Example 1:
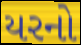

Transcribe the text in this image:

યરનો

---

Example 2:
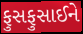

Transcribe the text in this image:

ફુસફુસાઈને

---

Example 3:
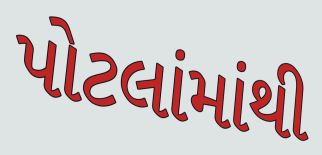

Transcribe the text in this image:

પોટલાંમાંથી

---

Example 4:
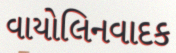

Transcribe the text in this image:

વાયોલિનવાદક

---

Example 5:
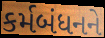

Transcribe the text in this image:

કર્મબંધનને